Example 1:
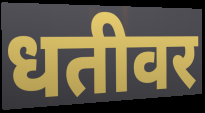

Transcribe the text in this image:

धतीवर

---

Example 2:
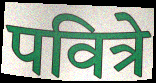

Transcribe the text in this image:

पवित्रे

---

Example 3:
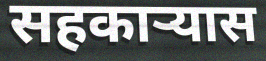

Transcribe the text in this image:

सहकार्‍यास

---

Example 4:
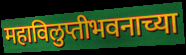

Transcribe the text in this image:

महाविलुप्तीभवनाच्या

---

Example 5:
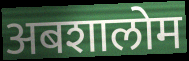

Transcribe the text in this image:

अबशालोम